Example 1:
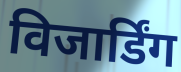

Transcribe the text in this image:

विजार्डिंग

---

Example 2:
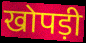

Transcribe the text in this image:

खोपड़ी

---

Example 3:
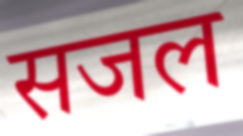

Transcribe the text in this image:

सजल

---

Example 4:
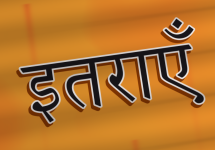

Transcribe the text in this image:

इतराएँ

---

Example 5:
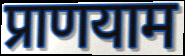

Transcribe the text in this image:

प्राणयाम